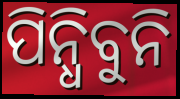
ପିନ୍ଧିବୁନି